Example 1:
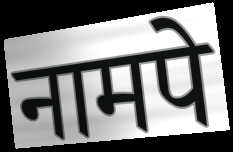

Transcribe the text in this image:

नामपे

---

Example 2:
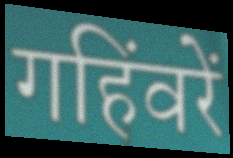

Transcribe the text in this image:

गहिंवरें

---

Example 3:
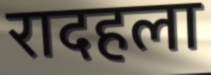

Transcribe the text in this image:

रादहला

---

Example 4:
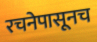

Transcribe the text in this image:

रचनेपासूनच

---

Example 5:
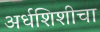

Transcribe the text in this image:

अर्धशिशीचा